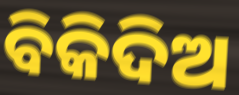
ବିକିଦିଅ